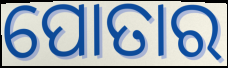
ପୋତାର